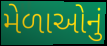
મેળાઓનું